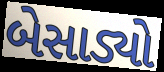
બેસાડ્યો